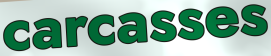
carcasses